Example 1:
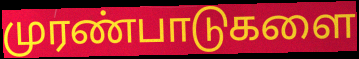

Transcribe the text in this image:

முரண்பாடுகளை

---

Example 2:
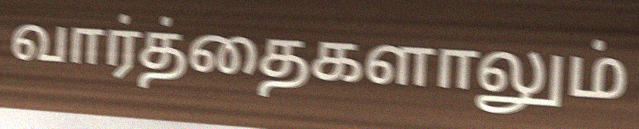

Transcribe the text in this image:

வார்த்தைகளாலும்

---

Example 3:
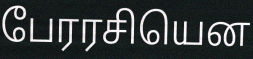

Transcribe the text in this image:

பேரரசியென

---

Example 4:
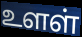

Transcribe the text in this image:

உளள்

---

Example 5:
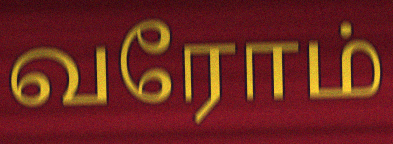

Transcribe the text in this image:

வரோம்